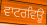
ਵਾਟਰਵਿਊ